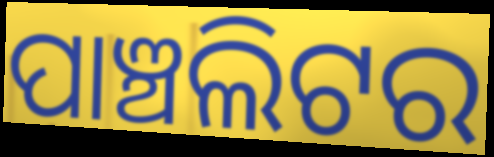
ପାଞ୍ଚଲିଟର